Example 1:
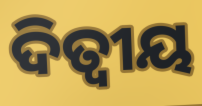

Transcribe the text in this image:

ଦିତ୍ୱୀୟ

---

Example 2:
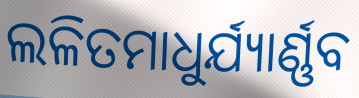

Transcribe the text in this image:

ଲଳିତମାଧୁର୍ଯ୍ୟାର୍ଣ୍ଣବ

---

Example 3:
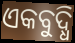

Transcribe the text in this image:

ଏକବୁଦ୍ଧି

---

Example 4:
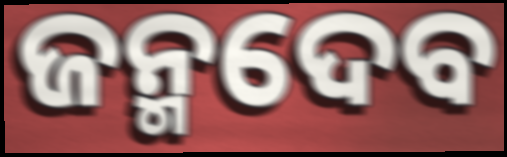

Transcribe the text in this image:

ଜନ୍ମଦେବ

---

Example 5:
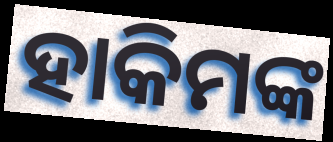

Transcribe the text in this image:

ହାକିମଙ୍କ